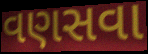
વણસવા